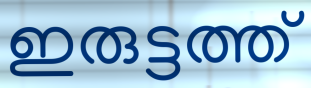
ഇരുട്ടത്ത്